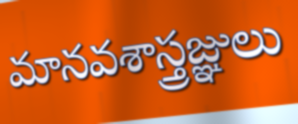
మానవశాస్త్రజ్ఞులు